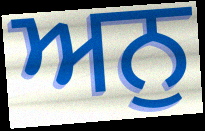
ਅਨੁ